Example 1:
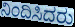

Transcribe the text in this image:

ನಿಂದಿಸಿದರು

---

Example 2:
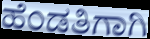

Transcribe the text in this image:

ಹೆಂಡತಿಗಾಗಿ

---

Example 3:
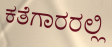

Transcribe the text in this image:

ಕತೆಗಾರರಲ್ಲಿ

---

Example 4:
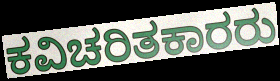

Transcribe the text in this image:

ಕವಿಚರಿತಕಾರರು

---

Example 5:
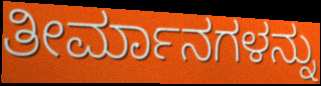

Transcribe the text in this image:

ತೀರ್ಮಾನಗಳನ್ನು